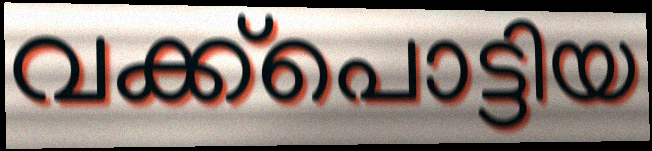
വക്ക്പൊട്ടിയ